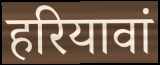
हरियावां